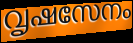
വൃഷസേനം